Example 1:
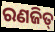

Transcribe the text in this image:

ରଣଜିତ୍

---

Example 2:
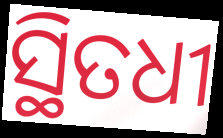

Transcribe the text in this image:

ସ୍ଥିତଧୀ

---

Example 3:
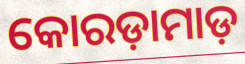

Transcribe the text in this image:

କୋରଡ଼ାମାଡ଼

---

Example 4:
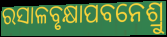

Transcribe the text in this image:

ରସାଳବୃକ୍ଷାପବନେଶ୍ରୁ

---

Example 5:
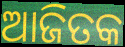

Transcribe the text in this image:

ଆଜିତକ